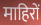
माहिरों